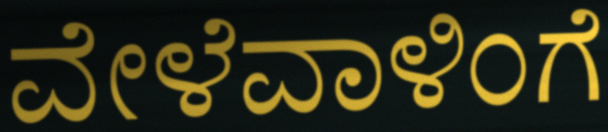
ವೇಳೆವಾಳಿಂಗೆ